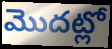
మొదట్లో